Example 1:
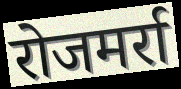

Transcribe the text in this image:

रोजमर्रा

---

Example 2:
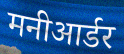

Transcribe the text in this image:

मनीआर्डर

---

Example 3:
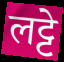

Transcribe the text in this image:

लट्टे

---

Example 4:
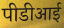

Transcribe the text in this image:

पीडीआई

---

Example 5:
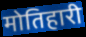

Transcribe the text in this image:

मोतिहारी